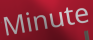
Minute